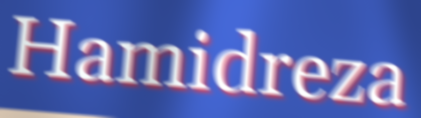
Hamidreza